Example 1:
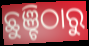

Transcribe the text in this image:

ଛୁଞ୍ଚିଠାରୁ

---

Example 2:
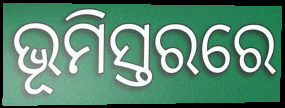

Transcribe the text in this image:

ଭୂମିସ୍ତରରେ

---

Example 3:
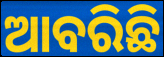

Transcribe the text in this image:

ଆବରିଛି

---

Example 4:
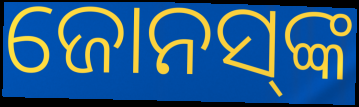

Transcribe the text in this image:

ଜୋନସ୍‌ଙ୍କ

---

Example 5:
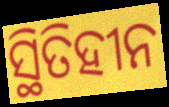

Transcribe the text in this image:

ସ୍ଥିତିହୀନ